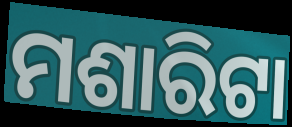
ମଶାରିଟା